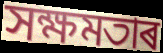
সক্ষমতাৰ